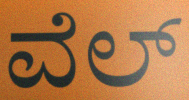
ವೆಲ್